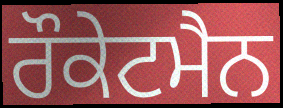
ਰੌਕੇਟਮੈਨ